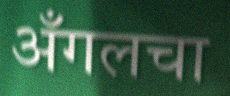
अँगलचा